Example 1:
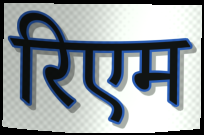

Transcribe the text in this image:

रिएम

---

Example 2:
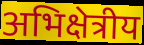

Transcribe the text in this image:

अभिक्षेत्रीय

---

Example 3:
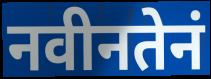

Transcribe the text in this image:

नवीनतेनं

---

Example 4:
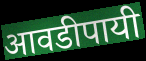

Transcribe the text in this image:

आवडीपायी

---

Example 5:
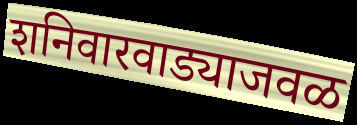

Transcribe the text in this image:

शनिवारवाड्याजवळ